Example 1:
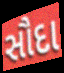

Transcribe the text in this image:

સૌદા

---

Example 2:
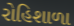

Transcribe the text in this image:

રોહિશાળા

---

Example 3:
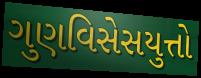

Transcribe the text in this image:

ગુણવિસેસયુત્તો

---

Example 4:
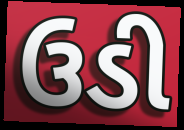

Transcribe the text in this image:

ઉડી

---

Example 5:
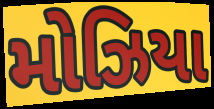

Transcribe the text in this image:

મોઝિયા